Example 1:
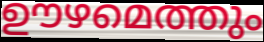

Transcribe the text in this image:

ഊഴമെത്തും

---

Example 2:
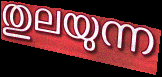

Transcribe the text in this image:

തുലയുന്ന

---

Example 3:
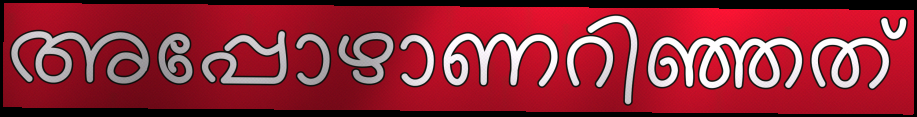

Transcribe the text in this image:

അപ്പോഴാണറിഞ്ഞത്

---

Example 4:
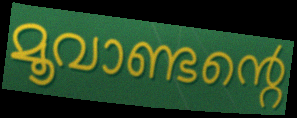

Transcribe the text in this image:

മൂവാണ്ടന്റെ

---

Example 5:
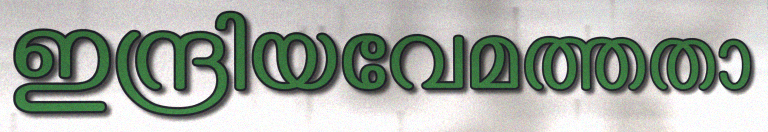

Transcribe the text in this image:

ഇന്ദ്രിയവേമത്തതാ